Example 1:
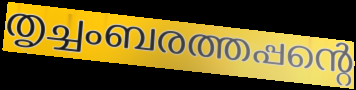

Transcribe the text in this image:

തൃച്ചംബരത്തപ്പന്റെ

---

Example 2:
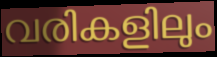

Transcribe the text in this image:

വരികളിലും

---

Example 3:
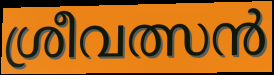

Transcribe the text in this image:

ശ്രീവത്സൻ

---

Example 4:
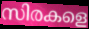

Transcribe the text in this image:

സിരകളെ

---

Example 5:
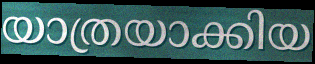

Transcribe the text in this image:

യാത്രയാക്കിയ